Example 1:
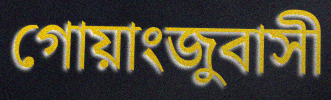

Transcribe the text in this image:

গোয়াংজুবাসী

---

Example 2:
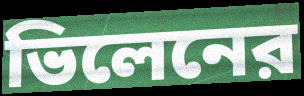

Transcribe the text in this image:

ভিলেনের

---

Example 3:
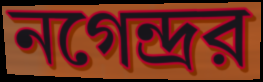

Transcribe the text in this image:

নগেন্দ্রর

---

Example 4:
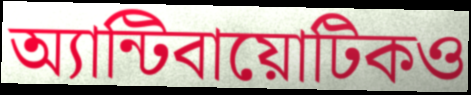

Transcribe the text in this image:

অ্যান্টিবায়োটিকও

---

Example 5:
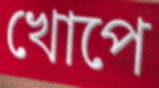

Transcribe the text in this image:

খোপে